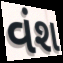
વંશ